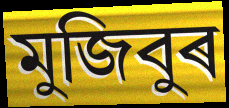
মুজিবুৰ